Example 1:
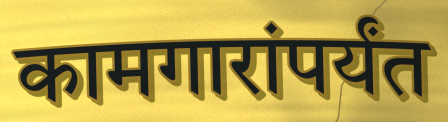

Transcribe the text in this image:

कामगारांपर्यंत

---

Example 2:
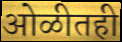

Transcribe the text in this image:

ओळीतही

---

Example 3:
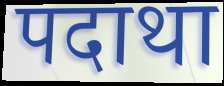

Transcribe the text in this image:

पदाथा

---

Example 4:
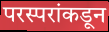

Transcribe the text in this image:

परस्परांकडून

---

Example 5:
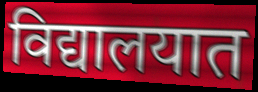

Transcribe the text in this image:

विद्यालयात